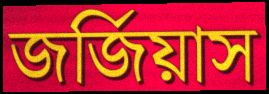
জর্জিয়াস